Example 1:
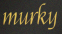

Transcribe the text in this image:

murky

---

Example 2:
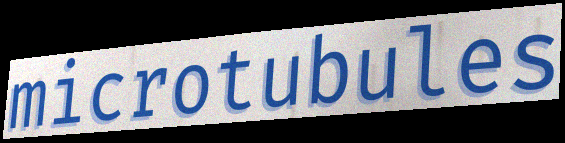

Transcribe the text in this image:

microtubules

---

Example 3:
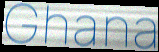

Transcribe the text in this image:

Ghana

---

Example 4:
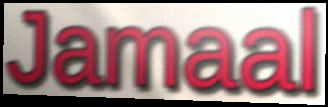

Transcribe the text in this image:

Jamaal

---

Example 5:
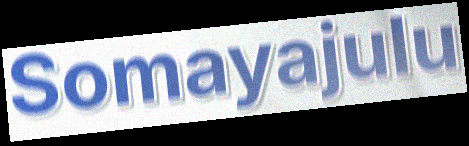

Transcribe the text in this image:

Somayajulu